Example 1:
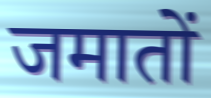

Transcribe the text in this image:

जमातों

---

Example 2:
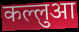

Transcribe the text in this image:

कल्लुआ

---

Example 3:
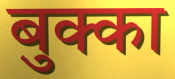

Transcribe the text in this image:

बुक्का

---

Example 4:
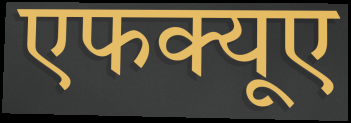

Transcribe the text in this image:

एफक्यूए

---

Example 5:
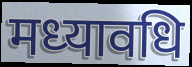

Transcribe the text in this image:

मध्‍यावधि